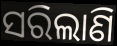
ସରିଲାଣି